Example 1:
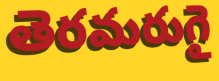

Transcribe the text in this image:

తెరమరుగై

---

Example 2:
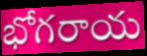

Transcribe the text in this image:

భోగరాయ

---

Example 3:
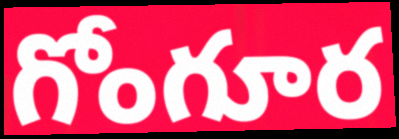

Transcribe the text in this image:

గోంగూర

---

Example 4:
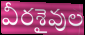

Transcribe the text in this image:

వీరశైవుల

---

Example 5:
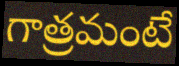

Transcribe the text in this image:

గాత్రమంటే